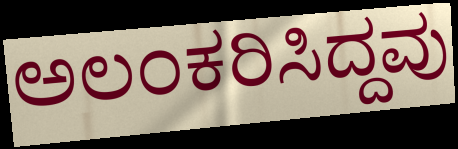
ಅಲಂಕರಿಸಿದ್ದವು